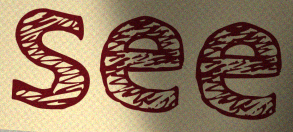
see